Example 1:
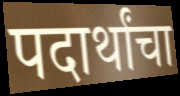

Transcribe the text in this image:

पदार्थांचा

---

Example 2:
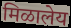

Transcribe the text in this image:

मिळालेय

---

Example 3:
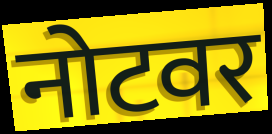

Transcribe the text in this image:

नोटवर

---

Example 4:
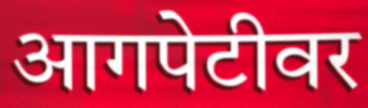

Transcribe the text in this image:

आगपेटीवर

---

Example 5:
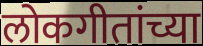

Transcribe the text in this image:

लोकगीतांच्या